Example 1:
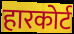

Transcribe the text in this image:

हारकोर्ट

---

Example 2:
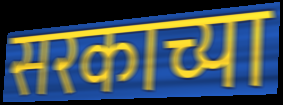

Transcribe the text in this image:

सरकाच्या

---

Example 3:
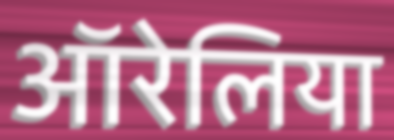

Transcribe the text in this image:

ऑरेलिया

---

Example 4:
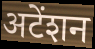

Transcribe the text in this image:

अटेंशन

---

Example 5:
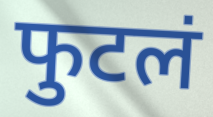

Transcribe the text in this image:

फुटलं